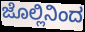
ಜೊಲ್ಲಿನಿಂದ